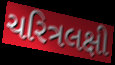
ચરિત્રલક્ષી